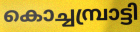
കൊച്ചമ്പ്രാട്ടി